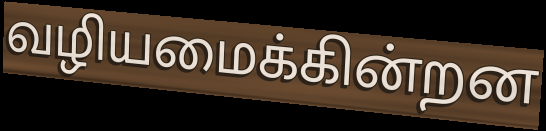
வழியமைக்கின்றன